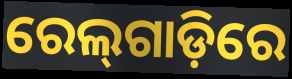
ରେଲ୍‌ଗାଡ଼ିରେ